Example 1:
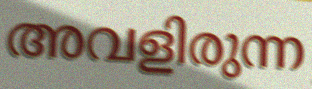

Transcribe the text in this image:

അവളിരുന്ന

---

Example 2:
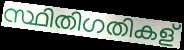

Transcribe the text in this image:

സ്ഥിതിഗതികള്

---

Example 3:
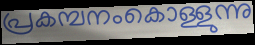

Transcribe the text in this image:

പ്രകമ്പനംകൊള്ളുന്നു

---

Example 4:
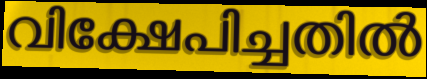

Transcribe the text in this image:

വിക്ഷേപിച്ചതിൽ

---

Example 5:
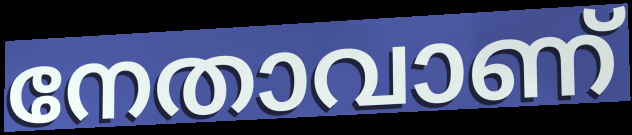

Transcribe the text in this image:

നേതാവാണ്